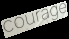
courage